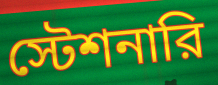
স্টেশনারি